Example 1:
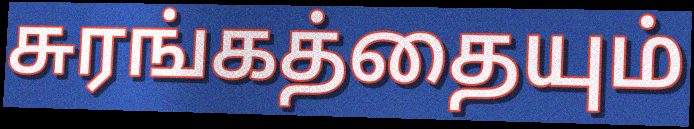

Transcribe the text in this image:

சுரங்கத்தையும்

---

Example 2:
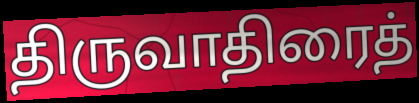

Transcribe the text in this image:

திருவாதிரைத்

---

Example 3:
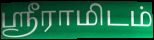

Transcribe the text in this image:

ஸ்ரீராமிடம்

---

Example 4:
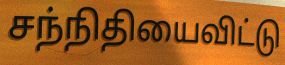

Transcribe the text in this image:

சந்நிதியைவிட்டு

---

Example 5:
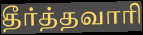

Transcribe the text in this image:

தீர்த்தவாரி